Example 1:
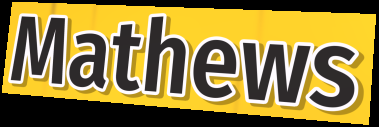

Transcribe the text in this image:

Mathews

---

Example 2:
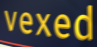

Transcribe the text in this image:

vexed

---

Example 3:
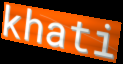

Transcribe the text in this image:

khati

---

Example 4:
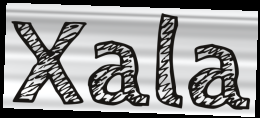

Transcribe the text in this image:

Xala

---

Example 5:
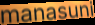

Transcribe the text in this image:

manasuni